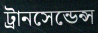
ট্রানসেন্ডেন্স